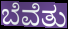
ಬೆವೆತು